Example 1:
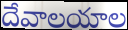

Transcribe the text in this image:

దేవాలయాల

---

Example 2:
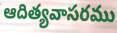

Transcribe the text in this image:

ఆదిత్యవాసరము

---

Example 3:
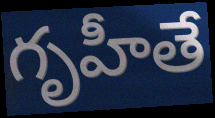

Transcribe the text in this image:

గృహీతే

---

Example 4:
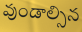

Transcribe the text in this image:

వుండాల్సిన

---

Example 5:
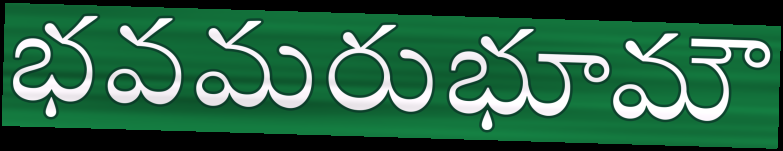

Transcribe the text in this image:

భవమరుభూమౌ